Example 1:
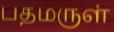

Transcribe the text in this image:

பதமருள்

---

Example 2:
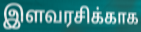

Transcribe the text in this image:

இளவரசிக்காக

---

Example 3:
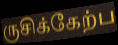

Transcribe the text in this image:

ருசிக்கேற்ப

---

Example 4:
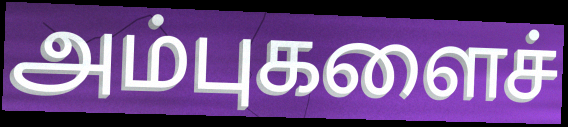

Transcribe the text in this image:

அம்புகளைச்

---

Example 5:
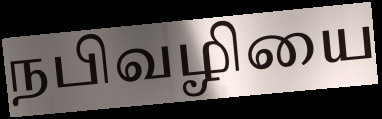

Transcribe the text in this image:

நபிவழியை